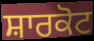
ਸ਼ਾਰਕੋਟ